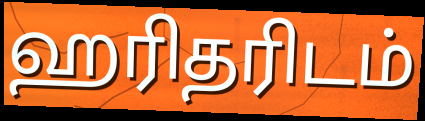
ஹரிதரிடம்